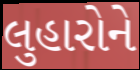
લુહારોને